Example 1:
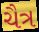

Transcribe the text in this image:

ચૈત્ર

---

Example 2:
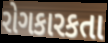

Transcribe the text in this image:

રોગકારકતા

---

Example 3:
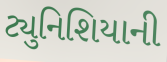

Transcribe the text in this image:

ટ્યુનિશિયાની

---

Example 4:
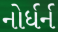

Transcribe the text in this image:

નોર્ધર્ન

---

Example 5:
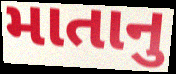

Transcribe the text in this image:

માતાનુ